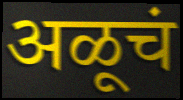
अळूचं